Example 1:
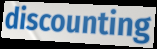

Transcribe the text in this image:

discounting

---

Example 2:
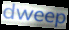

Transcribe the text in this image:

dweep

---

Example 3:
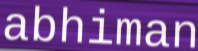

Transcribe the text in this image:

abhiman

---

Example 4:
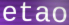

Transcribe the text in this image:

etao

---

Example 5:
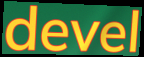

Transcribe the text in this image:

devel